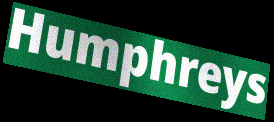
Humphreys